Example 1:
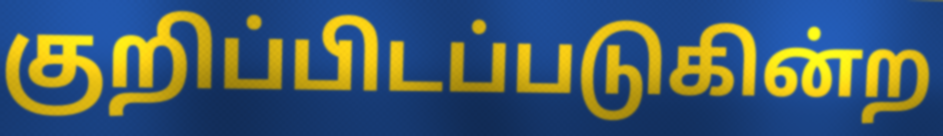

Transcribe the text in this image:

குறிப்பிடப்படுகின்ற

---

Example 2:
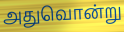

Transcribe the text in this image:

அதுவொன்று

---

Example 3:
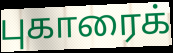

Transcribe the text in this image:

புகாரைக்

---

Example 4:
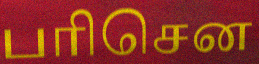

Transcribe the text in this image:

பரிசென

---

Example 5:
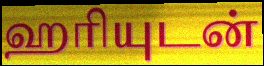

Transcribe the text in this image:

ஹரியுடன்